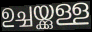
ഉച്ചയ്ക്കുള്ള